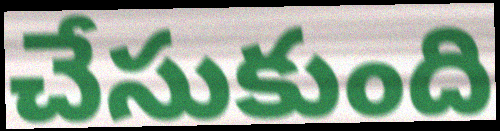
చేసుకుంది